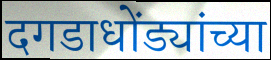
दगडाधोंड्यांच्या